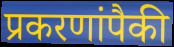
प्रकरणांपैकी